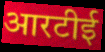
आरटीई